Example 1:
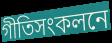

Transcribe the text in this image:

গীতিসংকলনে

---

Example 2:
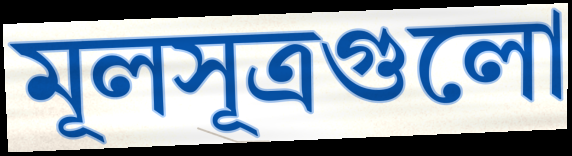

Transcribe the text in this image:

মূলসূত্রগুলো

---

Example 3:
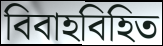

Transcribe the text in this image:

বিবাহবিহিত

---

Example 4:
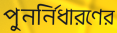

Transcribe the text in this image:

পুনর্নিধারণের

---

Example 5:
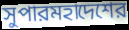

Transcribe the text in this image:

সুপারমহাদেশের